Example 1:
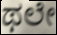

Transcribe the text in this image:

ಥಲೇ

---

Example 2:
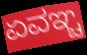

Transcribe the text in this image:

ಏವಞ್ಚ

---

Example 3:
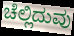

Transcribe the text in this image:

ಚೆಲ್ಲಿದುವು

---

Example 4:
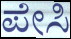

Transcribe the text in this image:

ಪೇಸಿ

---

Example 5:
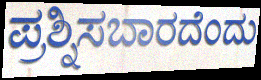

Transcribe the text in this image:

ಪ್ರಶ್ನಿಸಬಾರದೆಂದು